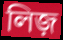
লিজ়